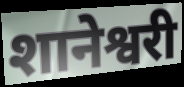
शानेश्वरी